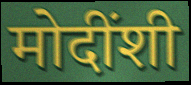
मोदींशी